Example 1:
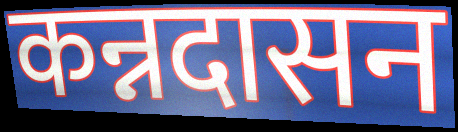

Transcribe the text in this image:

कन्नदासन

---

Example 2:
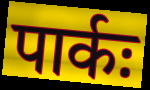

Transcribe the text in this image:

पार्कः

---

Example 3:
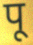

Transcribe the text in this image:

पू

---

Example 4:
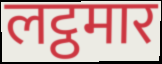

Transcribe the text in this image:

लट्ठमार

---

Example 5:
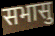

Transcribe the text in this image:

सभासु